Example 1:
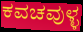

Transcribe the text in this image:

ಕವಚವುಳ್ಳ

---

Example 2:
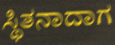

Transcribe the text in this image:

ಸ್ಥಿತನಾದಾಗ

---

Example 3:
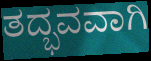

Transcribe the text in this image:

ತದ್ಭವವಾಗಿ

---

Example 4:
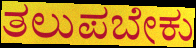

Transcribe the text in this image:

ತಲುಪಬೇಕು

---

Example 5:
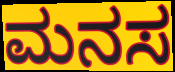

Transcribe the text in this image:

ಮನಸ